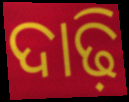
ଦାଢ଼ି